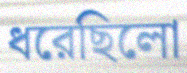
ধরেছিলো